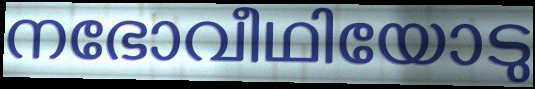
നഭോവീഥിയോടു